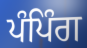
ਪੰਪਿੰਗ